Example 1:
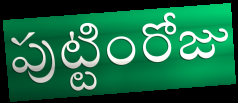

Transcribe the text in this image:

పుట్టింరోజు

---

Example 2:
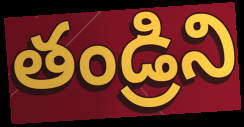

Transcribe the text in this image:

తండ్రిని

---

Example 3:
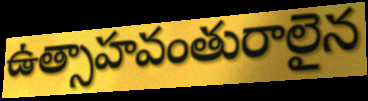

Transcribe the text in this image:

ఉత్సాహవంతురాలైన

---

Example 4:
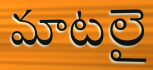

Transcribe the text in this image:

మాటలై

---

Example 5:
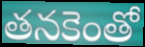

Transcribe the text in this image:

తనకెంతో